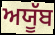
ਅਯੂੱਬ